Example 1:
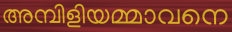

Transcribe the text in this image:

അമ്പിളിയമ്മാവനെ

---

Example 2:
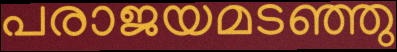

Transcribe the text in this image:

പരാജയമടഞ്ഞു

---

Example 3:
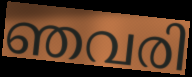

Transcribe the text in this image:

ഞവരി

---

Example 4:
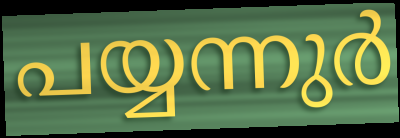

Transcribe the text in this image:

പയ്യന്നുർ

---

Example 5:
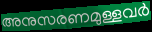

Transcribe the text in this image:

അനുസരണമുള്ളവർ